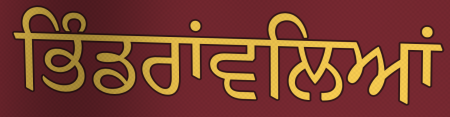
ਭਿੰਡਰਾਂਵਲਿਆਂ